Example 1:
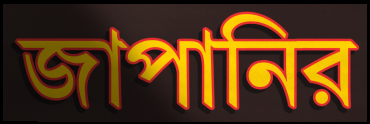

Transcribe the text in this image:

জাপানির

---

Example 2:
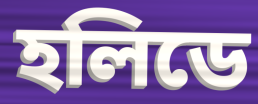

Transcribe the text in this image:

হলিডে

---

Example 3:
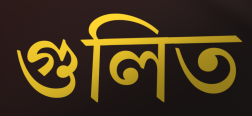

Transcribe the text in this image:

গুলিত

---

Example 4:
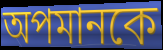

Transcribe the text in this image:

অপমানকে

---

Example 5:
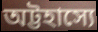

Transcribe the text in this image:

অট্টহাস্যে